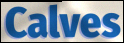
Calves